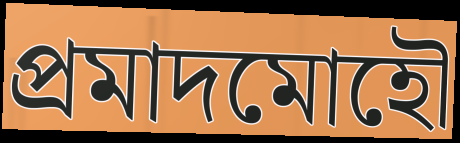
প্রমাদমোহৌ